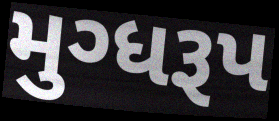
મુગ્ધરૂપ